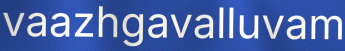
vaazhgavalluvam